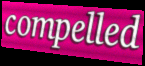
compelled